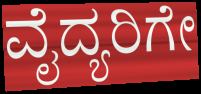
ವೈದ್ಯರಿಗೇ